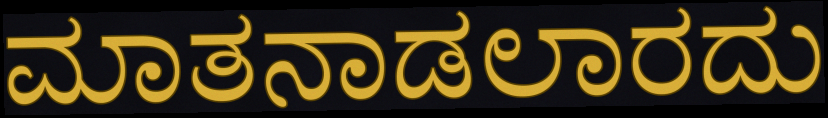
ಮಾತನಾಡಲಾರದು